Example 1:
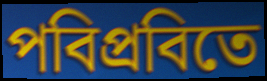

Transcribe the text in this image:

পবিপ্রবিতে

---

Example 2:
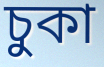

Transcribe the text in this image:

চুকা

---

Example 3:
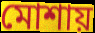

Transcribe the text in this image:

মোশায়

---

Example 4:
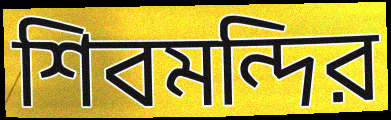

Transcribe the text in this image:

শিবমন্দির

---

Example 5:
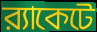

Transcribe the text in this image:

র‍্যাকেটে